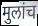
मुलांच